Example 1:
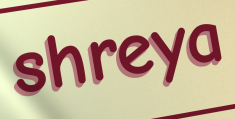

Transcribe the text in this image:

shreya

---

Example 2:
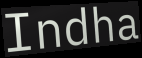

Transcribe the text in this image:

Indha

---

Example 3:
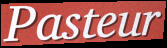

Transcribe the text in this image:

Pasteur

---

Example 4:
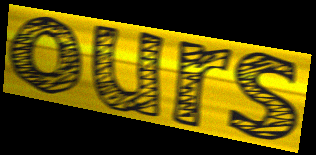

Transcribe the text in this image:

ours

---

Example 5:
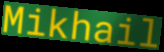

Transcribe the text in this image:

Mikhail